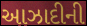
આઝાદીની